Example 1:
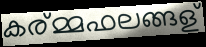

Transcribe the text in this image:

കര്മ്മഫലങ്ങള്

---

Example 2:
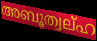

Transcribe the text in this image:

അബൂത്വല്ഹ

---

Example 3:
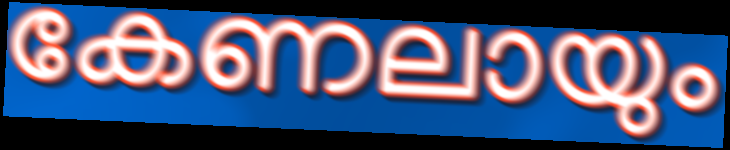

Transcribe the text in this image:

കേണലായും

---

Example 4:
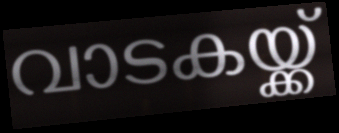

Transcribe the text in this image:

വാടകയ്ക്ക്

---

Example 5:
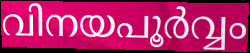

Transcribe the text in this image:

വിനയപൂർവ്വം